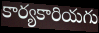
కార్యకారియగు